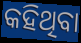
କହିଥିବା